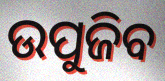
ଉପୁଜିବ